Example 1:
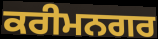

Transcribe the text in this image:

ਕਰੀਮਨਗਰ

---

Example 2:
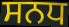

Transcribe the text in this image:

ਸਨਧ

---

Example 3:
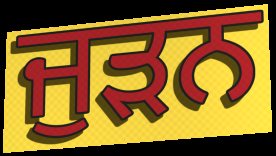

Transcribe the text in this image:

ਜੁਡ਼ਨ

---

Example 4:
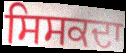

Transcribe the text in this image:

ਸਿਸਕਦਾ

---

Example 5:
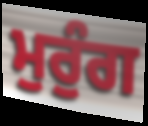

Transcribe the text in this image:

ਮੁਰੁੰਗ